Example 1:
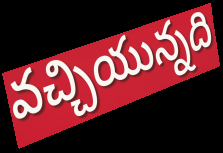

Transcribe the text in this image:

వచ్చియున్నది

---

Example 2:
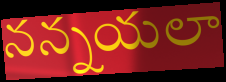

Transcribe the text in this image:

నన్నయలా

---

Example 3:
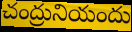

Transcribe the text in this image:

చంద్రునియందు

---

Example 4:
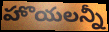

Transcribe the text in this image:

హొయలన్నీ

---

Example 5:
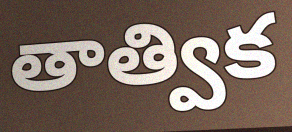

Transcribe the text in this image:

తాత్విక